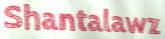
Shantalawz